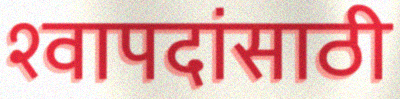
श्वापदांसाठी